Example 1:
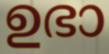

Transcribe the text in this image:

ഉഭാ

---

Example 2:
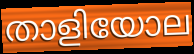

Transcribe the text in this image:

താളിയോല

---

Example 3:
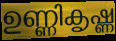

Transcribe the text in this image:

ഉണ്ണികൃഷ്ണ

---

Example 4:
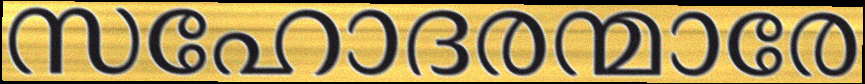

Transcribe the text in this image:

സഹോദരന്മാരേ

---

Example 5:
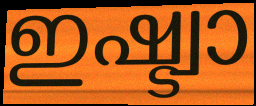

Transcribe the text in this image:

ഇഷ്ട്വാ